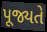
પૂજ્યતે